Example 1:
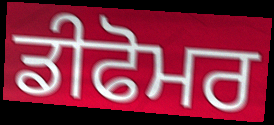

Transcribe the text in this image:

ਡੀਫੋਮਰ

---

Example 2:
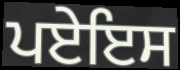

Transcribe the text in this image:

ਪਏਇਸ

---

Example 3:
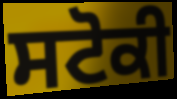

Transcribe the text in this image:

ਸਟੋਕੀ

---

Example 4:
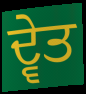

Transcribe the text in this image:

ਦ੍ਵੇਤ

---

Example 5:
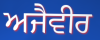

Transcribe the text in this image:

ਅਜੈਵੀਰ